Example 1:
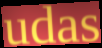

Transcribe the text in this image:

udas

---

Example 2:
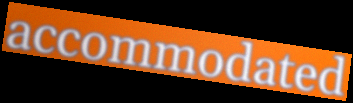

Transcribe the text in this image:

accommodated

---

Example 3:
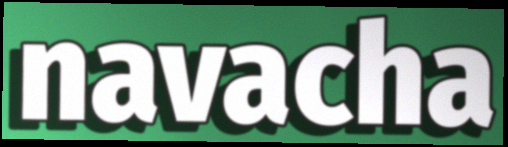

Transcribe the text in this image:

navacha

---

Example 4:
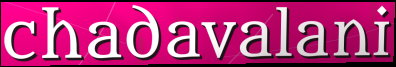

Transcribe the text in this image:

chadavalani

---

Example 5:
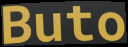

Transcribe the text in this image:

Buto